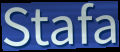
Stafa